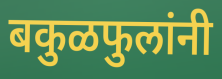
बकुळफुलांनी